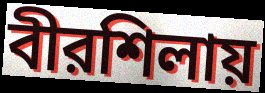
বীরশিলায়